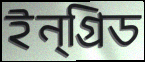
ইন্‌গ্রিড